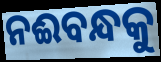
ନଈବନ୍ଧକୁ